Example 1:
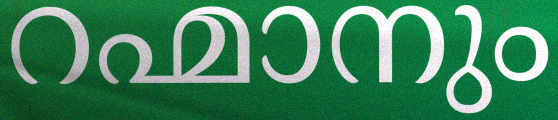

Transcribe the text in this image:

റഹ്മാനും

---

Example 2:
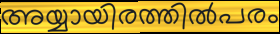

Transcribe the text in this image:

അയ്യായിരത്തിൽപരം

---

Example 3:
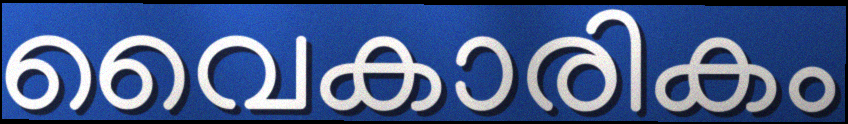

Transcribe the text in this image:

വൈകാരികം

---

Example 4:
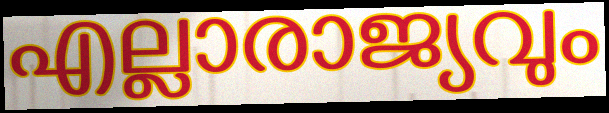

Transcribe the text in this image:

എല്ലാരാജ്യവും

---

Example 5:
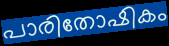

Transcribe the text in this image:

പാരിതോഷികം